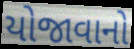
યોજાવાનો